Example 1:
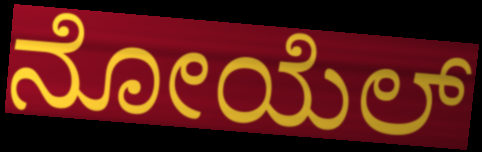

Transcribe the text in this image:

ನೋಯೆಲ್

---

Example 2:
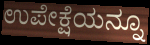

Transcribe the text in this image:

ಉಪೇಕ್ಷೆಯನ್ನೂ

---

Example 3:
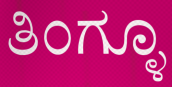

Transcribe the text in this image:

ತಿಂಗ್ಳೂ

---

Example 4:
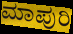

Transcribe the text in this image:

ಮಾಪುರಿ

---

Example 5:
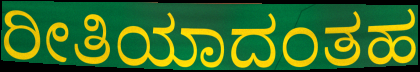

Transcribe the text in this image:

ರೀತಿಯಾದಂತಹ